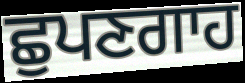
ਛੁਪਣਗਾਹ